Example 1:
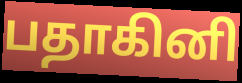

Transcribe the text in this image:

பதாகினி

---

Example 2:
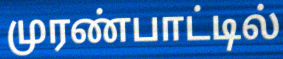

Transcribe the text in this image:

முரண்பாட்டில்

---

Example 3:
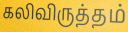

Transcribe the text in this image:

கலிவிருத்தம்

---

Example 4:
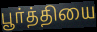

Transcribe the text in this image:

பூர்த்தியை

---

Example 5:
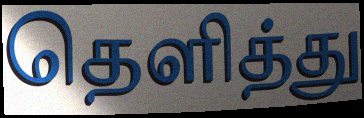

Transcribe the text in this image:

தெளித்து